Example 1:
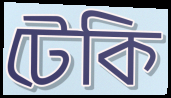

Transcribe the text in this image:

টেকি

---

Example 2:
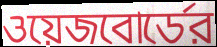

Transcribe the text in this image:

ওয়েজবোর্ডের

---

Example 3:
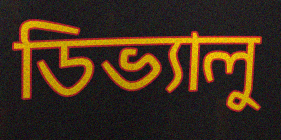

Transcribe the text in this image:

ডিভ্যালু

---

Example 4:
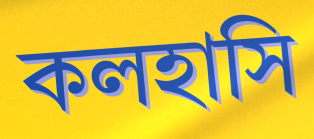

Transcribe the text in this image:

কলহাসি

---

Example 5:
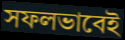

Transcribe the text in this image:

সফলভাবেই